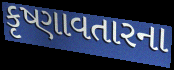
કૃષ્ણાવતારના